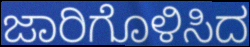
ಜಾರಿಗೊಳಿಸಿದ